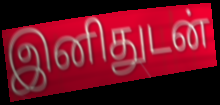
இனிதுடன்